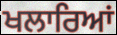
ਖਲਾਰਿਆਂ